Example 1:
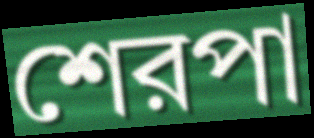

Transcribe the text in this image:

শেরপা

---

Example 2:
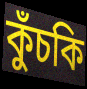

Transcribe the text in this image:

কুঁচকি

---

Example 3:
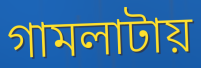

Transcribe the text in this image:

গামলাটায়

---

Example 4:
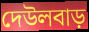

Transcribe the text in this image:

দেউলবাড়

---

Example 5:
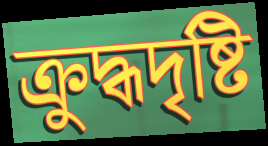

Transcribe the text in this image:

ক্রুদ্ধদৃষ্টি